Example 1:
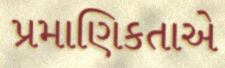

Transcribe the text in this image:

પ્રમાણિકતાએ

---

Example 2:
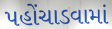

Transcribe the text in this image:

પહોંચાડવામાં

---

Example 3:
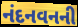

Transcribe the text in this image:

નંદનવનની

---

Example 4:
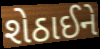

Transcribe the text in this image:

શેઠાઈને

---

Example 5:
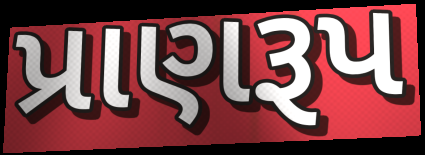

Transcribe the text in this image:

પ્રાણરૂપ